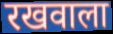
रखवाला